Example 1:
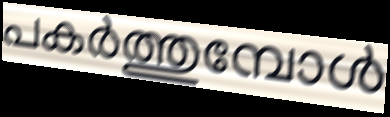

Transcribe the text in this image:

പകർത്തുമ്പോൾ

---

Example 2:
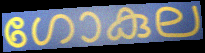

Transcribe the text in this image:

ഗോകുല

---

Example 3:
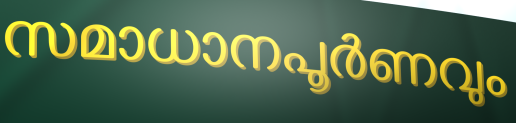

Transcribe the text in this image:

സമാധാനപൂർണവും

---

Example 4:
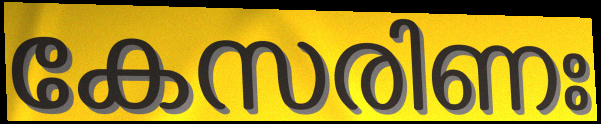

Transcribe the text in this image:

കേസരിണഃ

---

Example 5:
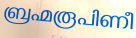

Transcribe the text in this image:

ബ്രഹ്മരൂപിണീ